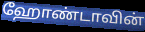
ஹோண்டாவின்